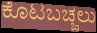
ಕೊಟಬಚ್ಚಲು